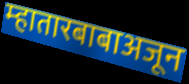
म्हातारबाबाअजून